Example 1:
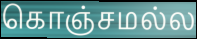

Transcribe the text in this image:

கொஞ்சமல்ல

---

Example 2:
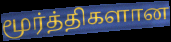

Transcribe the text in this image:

மூர்த்திகளான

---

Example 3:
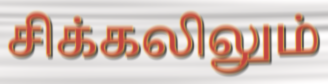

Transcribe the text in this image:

சிக்கலிலும்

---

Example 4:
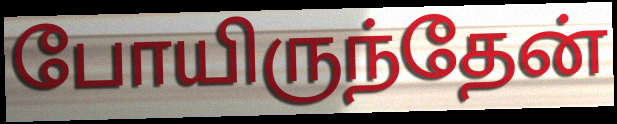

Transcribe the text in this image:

போயிருந்தேன்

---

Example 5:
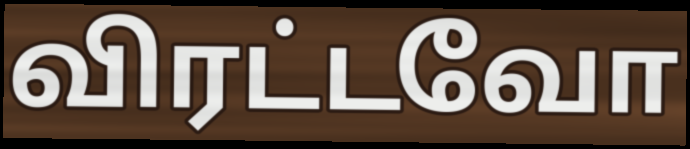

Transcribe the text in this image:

விரட்டவோ